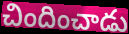
చిందించాడు